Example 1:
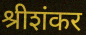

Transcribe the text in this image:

श्रीशंकर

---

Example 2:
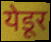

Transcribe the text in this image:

येडूर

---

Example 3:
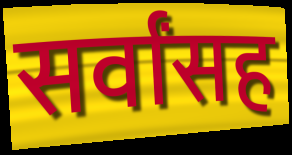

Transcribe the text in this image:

सर्वांसह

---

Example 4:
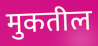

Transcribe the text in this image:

मुकतील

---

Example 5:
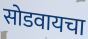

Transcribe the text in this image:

सोडवायचा